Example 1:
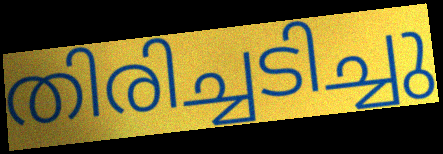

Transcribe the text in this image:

തിരിച്ചടിച്ചു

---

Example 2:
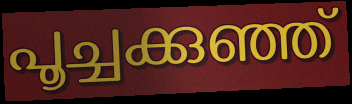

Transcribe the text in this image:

പൂച്ചക്കുഞ്ഞ്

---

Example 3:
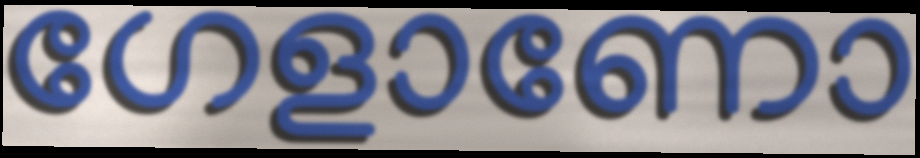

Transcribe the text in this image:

ഗേളാണോ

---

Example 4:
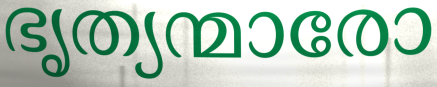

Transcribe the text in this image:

ഭൃത്യന്മാരോ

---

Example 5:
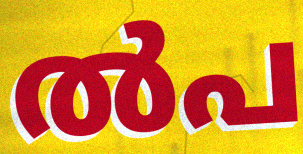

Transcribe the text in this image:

ൽപ